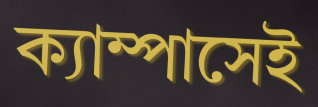
ক্যাম্পাসেই